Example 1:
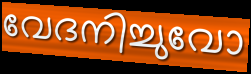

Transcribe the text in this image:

വേദനിച്ചുവോ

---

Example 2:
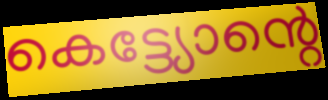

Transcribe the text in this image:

കെട്ട്യോന്റെ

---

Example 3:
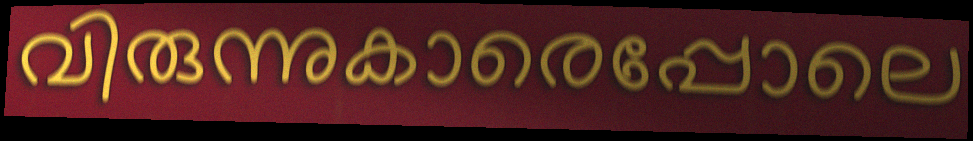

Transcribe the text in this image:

വിരുന്നുകാരെപ്പോലെ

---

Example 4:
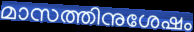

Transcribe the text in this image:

മാസത്തിനുശേഷം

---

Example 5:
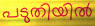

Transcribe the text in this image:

പടുതിയിൽ